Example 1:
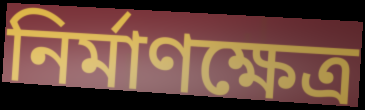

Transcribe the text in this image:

নির্মাণক্ষেত্র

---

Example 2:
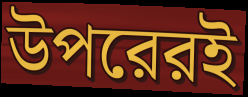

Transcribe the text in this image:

উপরেরই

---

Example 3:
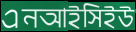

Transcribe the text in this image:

এনআইসিইউ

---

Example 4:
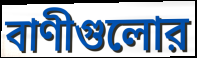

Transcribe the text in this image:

বাণীগুলোর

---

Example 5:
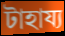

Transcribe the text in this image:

টাহায্য